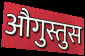
औगुस्तुस